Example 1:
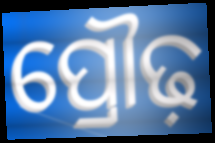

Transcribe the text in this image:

ପ୍ରୌଢ଼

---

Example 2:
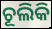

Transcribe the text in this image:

ଚୂଲିକି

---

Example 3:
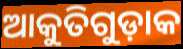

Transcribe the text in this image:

ଆକୁତିଗୁଡ଼ାକ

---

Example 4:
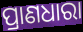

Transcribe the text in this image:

ପ୍ରାଣଧାରା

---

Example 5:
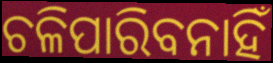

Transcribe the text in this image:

ଚଳିପାରିବନାହିଁ